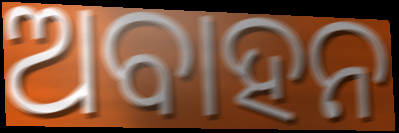
ଅବାହନ